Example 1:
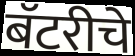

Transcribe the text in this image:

बॅटरीचे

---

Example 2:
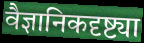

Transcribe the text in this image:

वैज्ञानिकदृष्ट्या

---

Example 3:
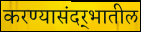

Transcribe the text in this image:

करण्यासंदर्भातील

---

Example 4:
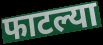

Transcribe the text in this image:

फाटल्या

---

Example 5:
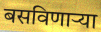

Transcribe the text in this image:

बसविणार्‍या